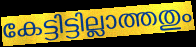
കേട്ടിട്ടില്ലാത്തതും